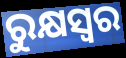
ରୁକ୍ଷସ୍ୱର